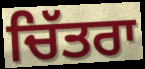
ਚਿੱਤਰਾ